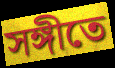
সঙ্গীতে